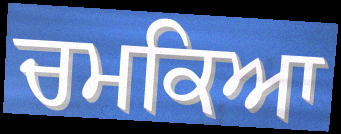
ਚਮਕਿਆ